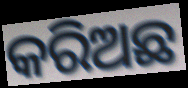
କରିଅଛ